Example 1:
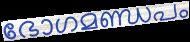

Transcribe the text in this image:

ഭോഗമണ്ഡപം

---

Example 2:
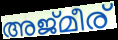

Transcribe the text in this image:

അജ്മീര്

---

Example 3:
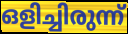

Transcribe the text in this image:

ഒളിച്ചിരുന്ന്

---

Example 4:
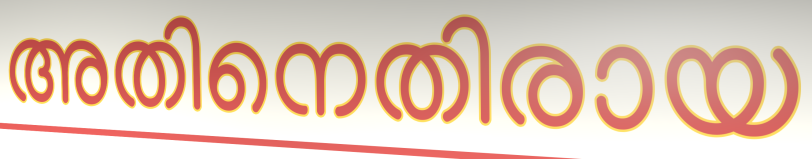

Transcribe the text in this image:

അതിനെതിരായ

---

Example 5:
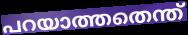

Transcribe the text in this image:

പറയാത്തതെന്ത്